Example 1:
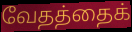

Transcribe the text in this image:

வேதத்தைக்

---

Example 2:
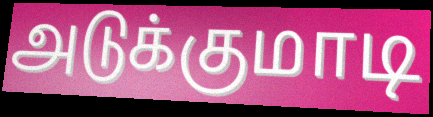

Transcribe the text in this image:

அடுக்குமாடி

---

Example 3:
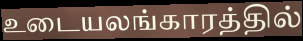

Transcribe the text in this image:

உடையலங்காரத்தில்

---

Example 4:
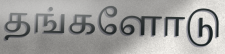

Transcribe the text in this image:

தங்களோடு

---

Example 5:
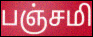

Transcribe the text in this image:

பஞ்சமி